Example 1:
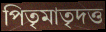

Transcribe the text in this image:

পিতৃমাতৃদত্ত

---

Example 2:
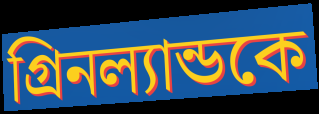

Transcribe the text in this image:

গ্রিনল্যান্ডকে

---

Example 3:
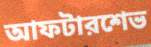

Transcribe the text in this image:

আফটারশেভ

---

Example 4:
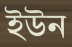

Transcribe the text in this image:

ইউন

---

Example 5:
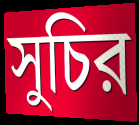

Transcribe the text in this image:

সুচির